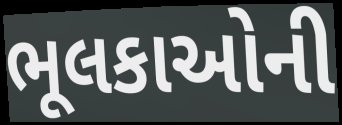
ભૂલકાઓની